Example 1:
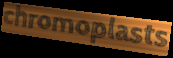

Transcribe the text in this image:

chromoplasts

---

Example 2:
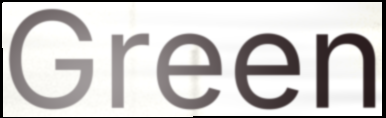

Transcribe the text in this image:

Green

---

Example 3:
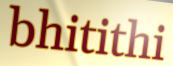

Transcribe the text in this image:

bhitithi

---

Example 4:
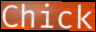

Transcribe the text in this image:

Chick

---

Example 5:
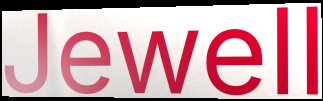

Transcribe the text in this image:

Jewell